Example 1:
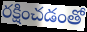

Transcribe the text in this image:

రక్షించడంతో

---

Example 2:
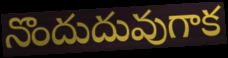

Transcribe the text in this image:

నొందుదువుగాక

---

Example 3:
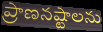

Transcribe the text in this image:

ప్రాణనష్టాలను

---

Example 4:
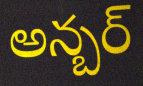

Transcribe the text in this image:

అన్బర్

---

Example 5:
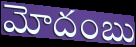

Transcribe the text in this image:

మోదంబు